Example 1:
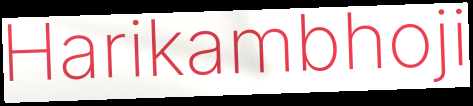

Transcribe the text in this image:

Harikambhoji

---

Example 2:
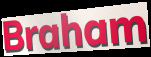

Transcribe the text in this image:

Braham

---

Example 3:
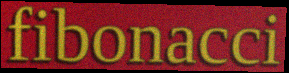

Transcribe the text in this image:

fibonacci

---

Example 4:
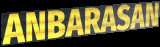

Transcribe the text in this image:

ANBARASAN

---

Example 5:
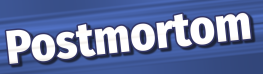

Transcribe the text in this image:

Postmortom